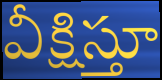
వీక్షిస్తూ